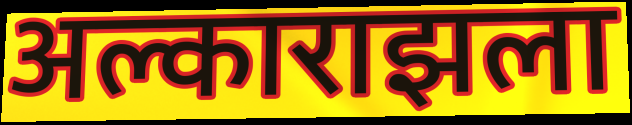
अल्काराझला